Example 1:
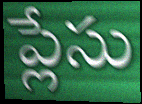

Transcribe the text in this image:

ప్లేసు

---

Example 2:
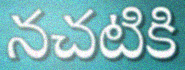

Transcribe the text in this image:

నచటికి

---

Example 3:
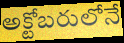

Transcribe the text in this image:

అక్టోబరులోనే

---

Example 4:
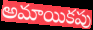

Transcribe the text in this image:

అమాయికపు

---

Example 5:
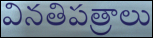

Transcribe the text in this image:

వినతిపత్రాలు